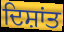
ਦਿਸ਼ਾਂਤ